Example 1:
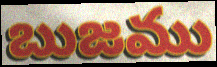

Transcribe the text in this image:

బుజము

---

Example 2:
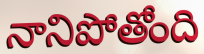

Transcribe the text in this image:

నానిపోతోంది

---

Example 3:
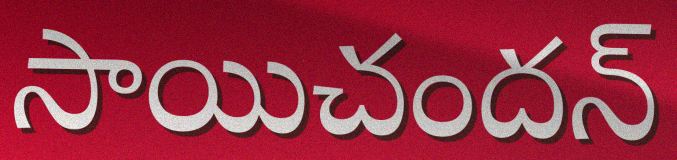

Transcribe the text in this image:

సాయిచందన్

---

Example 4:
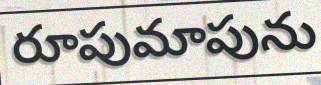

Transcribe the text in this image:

రూపుమాపును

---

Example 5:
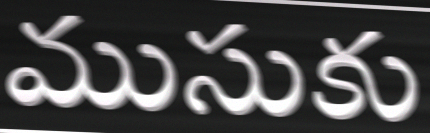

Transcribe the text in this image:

ముసుకు